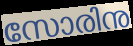
സോരിനു